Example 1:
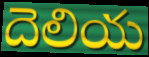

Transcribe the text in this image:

దెలియ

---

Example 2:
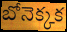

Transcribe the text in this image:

బోనెక్కక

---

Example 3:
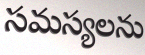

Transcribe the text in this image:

సమస్యలను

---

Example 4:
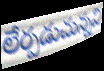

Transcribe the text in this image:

లేర్పడుచున్నవి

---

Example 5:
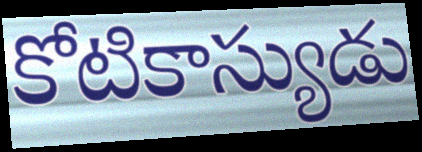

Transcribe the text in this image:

కోటికాస్యుడు